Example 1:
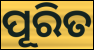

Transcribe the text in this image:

ପୂରିତ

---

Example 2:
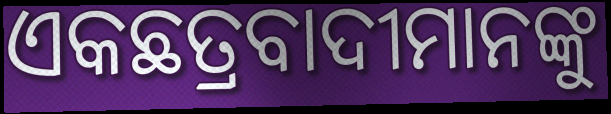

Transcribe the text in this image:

ଏକଛତ୍ରବାଦୀମାନଙ୍କୁ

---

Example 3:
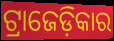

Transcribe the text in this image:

ଟ୍ରାଜେଡ଼ିକାର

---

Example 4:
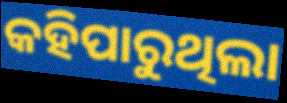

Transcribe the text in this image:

କହିପାରୁଥିଲା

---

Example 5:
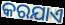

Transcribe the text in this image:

କରଯାଏ